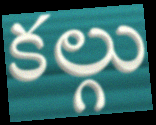
కల్గు